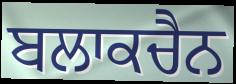
ਬਲਾਕਚੈਨ